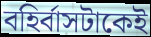
বহির্বাসটাকেই